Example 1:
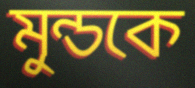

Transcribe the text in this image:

মুন্ডকে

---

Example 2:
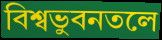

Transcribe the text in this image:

বিশ্বভুবনতলে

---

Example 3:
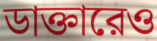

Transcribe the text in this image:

ডাক্তারেও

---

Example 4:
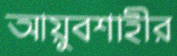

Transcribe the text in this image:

আয়ুবশাহীর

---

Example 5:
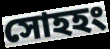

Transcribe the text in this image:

সোহহং